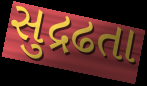
સુદ્રઢતા